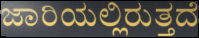
ಜಾರಿಯಲ್ಲಿರುತ್ತದೆ